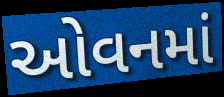
ઓવનમાં